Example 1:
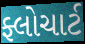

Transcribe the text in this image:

ફ્લોચાર્ટ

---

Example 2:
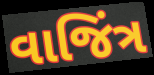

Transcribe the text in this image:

વાજિંત્ર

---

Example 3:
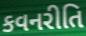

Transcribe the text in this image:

કવનરીતિ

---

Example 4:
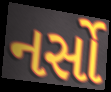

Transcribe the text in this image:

નર્સો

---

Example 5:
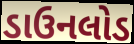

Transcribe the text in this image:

ડાઉનલોડ